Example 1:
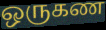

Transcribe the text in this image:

ஒருகண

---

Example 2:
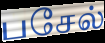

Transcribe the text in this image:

பசேல்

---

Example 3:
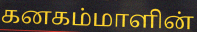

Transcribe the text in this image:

கனகம்மாளின்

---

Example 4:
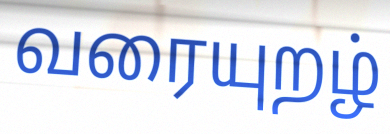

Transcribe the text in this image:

வரையுறழ்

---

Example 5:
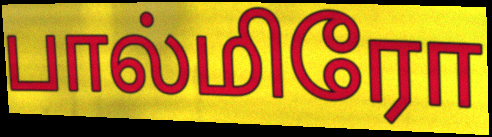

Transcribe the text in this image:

பால்மிரோ